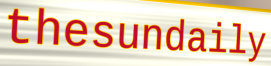
thesundaily